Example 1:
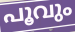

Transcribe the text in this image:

പൂവും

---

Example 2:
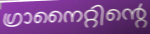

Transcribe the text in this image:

ഗ്രാനൈറ്റിന്റെ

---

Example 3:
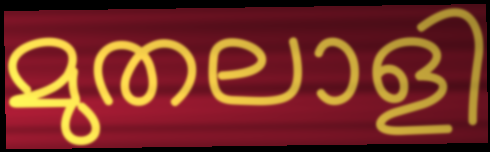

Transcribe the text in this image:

മുതലാളി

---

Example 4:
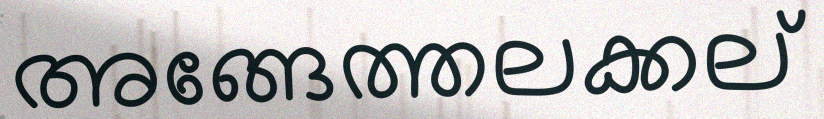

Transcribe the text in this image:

അങ്ങേത്തലക്കല്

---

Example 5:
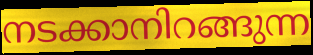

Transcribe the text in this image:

നടക്കാനിറങ്ങുന്ന